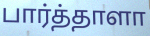
பார்த்தாளா